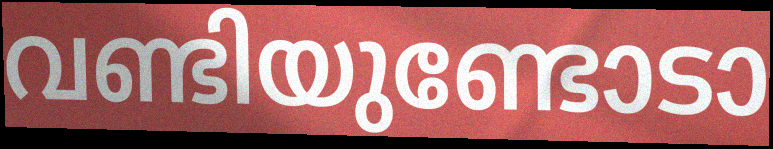
വണ്ടിയുണ്ടോടാ